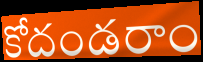
కోదండరాం